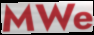
MWe